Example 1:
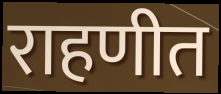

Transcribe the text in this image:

राहणीत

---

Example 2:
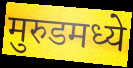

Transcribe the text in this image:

मुरुडमध्ये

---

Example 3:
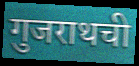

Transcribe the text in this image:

गुजराथची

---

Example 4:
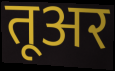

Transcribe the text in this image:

तूअर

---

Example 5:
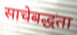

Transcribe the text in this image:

साचेबद्धता